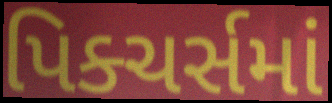
પિક્ચર્સમાં